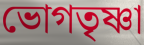
ভোগতৃষ্ণা